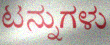
ಟನ್ನುಗಳು